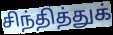
சிந்தித்துக்